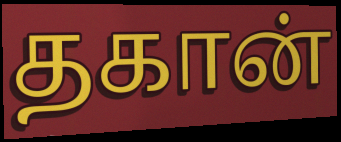
தகான்